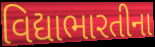
વિદ્યાભારતીના